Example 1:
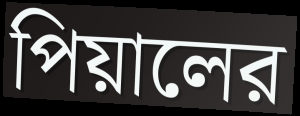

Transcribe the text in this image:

পিয়ালের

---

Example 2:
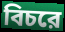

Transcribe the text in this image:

বিচরে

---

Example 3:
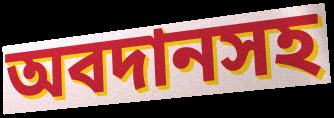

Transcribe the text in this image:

অবদানসহ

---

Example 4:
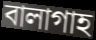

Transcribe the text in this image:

বালাগাহ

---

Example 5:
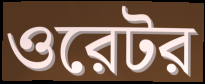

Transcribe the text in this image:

ওরেটর